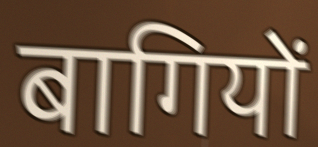
बागियों